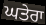
ਘਤੇਰਾ